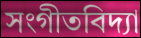
সংগীতবিদ্যা